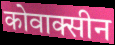
कोवाक्सीन